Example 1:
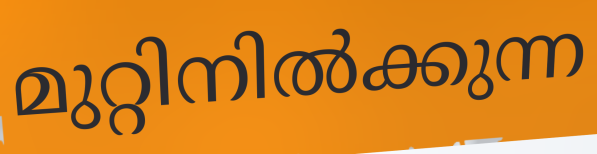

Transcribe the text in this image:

മുറ്റിനിൽക്കുന്ന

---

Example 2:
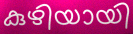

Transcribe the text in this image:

കുഴിയായി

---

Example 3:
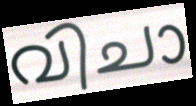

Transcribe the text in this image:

വിചാ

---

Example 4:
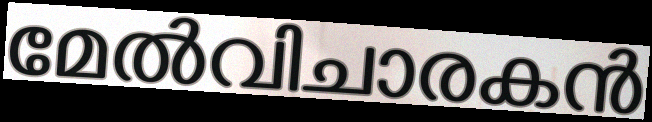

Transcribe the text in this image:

മേൽവിചാരകൻ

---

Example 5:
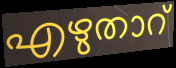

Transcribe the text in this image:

എഴുതാറ്